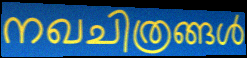
നഖചിത്രങ്ങൾ